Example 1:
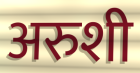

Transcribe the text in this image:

अरुशी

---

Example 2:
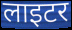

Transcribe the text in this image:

लाइटर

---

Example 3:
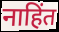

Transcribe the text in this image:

नाहिंत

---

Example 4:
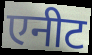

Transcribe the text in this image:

एनीट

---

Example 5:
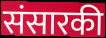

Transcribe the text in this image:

संसारकी